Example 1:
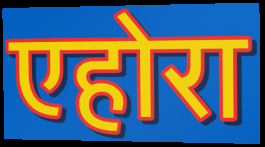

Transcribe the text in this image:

एहोरा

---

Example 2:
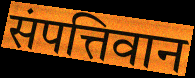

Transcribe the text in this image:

संपत्तिवान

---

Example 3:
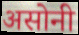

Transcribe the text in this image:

असोनी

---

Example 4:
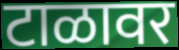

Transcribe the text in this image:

टाळावर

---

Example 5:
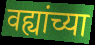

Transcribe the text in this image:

वह्यांच्या